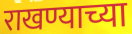
राखण्याच्या